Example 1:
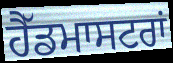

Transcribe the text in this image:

ਹੈੱਡਮਾਸਟਰਾਂ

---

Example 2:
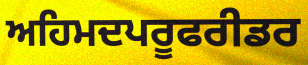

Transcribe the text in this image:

ਅਹਿਮਦਪਰੂਫਰੀਡਰ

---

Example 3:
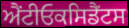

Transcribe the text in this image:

ਐਂਟੀਓਕਸਿਡੈਂਟਸ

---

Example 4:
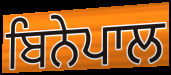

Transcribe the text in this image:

ਬਿਨੇਪਾਲ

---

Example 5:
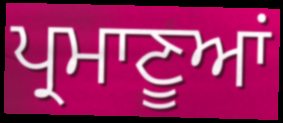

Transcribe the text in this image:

ਪ੍ਰਮਾਣੂਆਂ